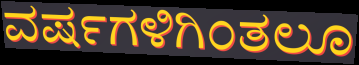
ವರ್ಷಗಳಿಗಿಂತಲೂ